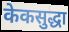
केकसुद्धा